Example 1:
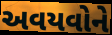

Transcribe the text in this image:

અવયવોને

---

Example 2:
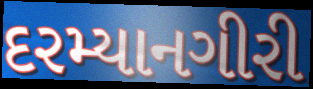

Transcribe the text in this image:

દરમ્યાનગીરી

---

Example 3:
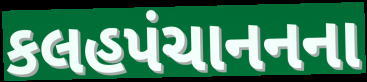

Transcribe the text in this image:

કલહપંચાનનના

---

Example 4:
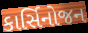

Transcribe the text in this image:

કાર્સિનોજન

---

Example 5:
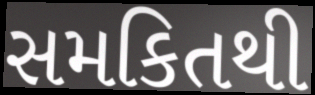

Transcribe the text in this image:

સમકિતથી